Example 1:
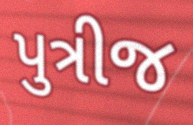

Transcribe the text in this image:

પુત્રીજ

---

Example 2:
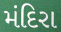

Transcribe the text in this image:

મંદિરા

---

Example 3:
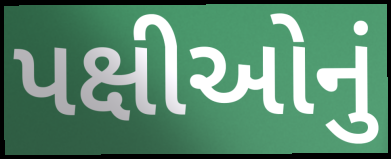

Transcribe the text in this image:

પક્ષીઓનું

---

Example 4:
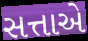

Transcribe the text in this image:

સત્તાએ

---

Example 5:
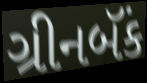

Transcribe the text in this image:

ગ્રીનબૅંક